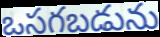
ఒసగబడును